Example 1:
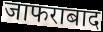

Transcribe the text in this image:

जाफराबाद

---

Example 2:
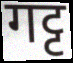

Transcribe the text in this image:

गट्ट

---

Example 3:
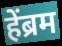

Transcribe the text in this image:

हेंब्रम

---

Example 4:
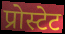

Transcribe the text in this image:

प्रोस्टेट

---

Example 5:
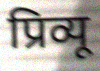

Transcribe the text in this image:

प्रिव्यू